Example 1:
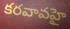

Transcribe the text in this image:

కరవావహై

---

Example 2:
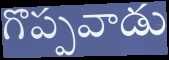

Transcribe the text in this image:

గొప్పవాడు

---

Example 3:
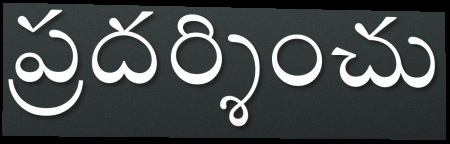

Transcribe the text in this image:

ప్రదర్శించు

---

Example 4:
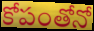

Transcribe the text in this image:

కోపంతోనో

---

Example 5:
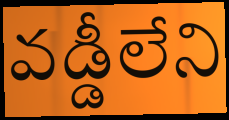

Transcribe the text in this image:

వడ్డీలేని